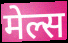
मेल्स